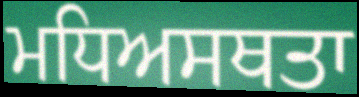
ਮਧਿਅਸਥਤਾ